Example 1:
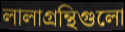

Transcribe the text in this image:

লালাগ্রন্থিগুলো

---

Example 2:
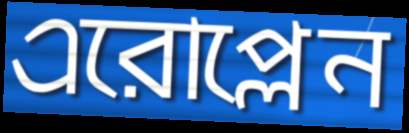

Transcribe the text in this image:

এরোপ্লেন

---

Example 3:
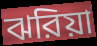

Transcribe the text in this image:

ঝরিয়া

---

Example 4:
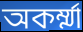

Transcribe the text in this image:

অকর্ম্মা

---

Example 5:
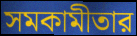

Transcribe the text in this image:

সমকামীতার